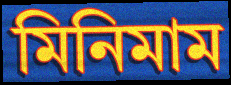
মিনিমাম